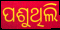
ପଶୁଥିଲି